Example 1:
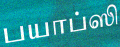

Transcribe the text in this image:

பயாப்ஸி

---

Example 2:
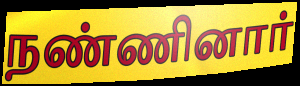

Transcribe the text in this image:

நண்ணினார்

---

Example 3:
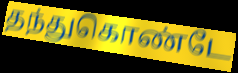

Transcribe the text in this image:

தந்துகொண்டே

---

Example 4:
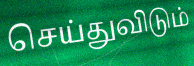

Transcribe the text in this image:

செய்துவிடும்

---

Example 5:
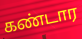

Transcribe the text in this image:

கண்டார